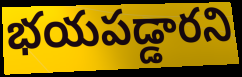
భయపడ్డారని